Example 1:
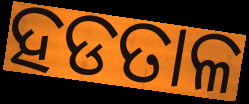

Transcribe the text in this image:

ହଡତାଳ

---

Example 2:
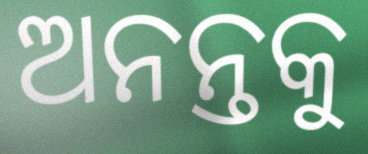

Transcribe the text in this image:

ଅନନ୍ତକୁ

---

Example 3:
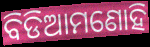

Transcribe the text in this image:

ବିଡିଆମଣୋହି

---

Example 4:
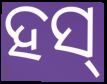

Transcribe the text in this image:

ହସ୍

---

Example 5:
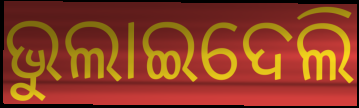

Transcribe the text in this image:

ଭୁଲାଇଦେଲି